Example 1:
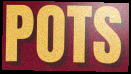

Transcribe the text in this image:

POTS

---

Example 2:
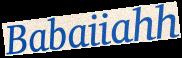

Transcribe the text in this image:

Babaiiahh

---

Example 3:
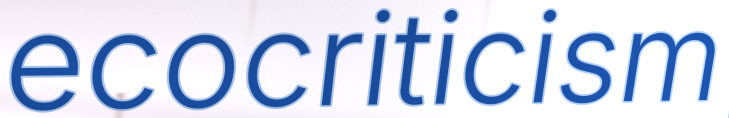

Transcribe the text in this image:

ecocriticism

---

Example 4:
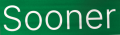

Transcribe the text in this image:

Sooner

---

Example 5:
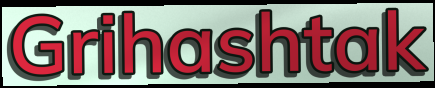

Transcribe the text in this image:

Grihashtak